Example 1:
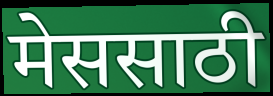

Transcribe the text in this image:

मेससाठी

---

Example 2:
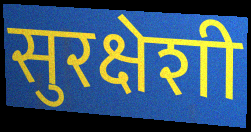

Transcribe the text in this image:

सुरक्षेशी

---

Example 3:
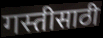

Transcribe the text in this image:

गस्तीसाठी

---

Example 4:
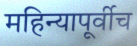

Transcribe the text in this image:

महिन्यापूर्वीच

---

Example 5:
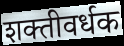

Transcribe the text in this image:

शक्तीवर्धक